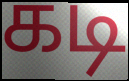
கடி